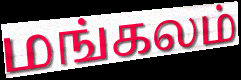
மங்கலம்